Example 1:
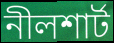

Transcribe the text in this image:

নীলশার্ট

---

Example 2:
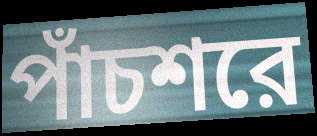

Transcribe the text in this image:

পাঁচশরে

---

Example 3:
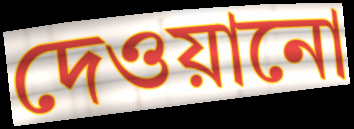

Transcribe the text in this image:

দেওয়ানো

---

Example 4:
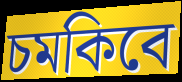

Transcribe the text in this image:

চমকিবে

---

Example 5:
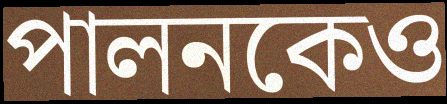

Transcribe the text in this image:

পালনকেও